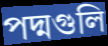
পদ্মগুলি